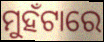
ମୁହଁଟାରେ